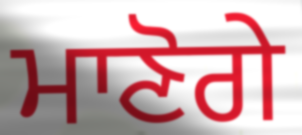
ਮਾਣੋਗੇ